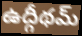
ఉద్గీథమ్